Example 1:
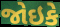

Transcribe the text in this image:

જોઇકે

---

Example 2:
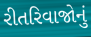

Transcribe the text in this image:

રીતરિવાજોનું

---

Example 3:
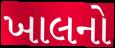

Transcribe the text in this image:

ખાલનો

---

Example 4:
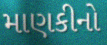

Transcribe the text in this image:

માણકીનો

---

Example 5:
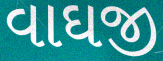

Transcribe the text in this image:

વાઘજી